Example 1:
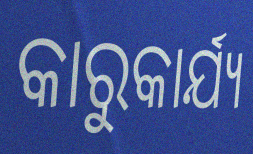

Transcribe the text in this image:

କାରୁକାର୍ଯ୍ୟ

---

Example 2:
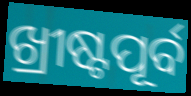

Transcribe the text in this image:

ଖ୍ରୀଷ୍ଟପୂର୍ବ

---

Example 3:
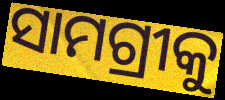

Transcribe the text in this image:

ସାମଗ୍ରୀକୁ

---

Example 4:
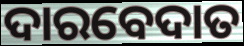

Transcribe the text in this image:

ଦାରବେଦାତ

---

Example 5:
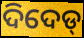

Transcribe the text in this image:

ଦିଦେଡ୍